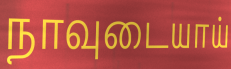
நாவுடையாய்